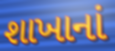
શાખાનાં